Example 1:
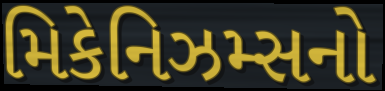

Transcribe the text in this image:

મિકેનિઝમ્સનો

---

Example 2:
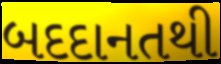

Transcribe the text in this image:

બદદાનતથી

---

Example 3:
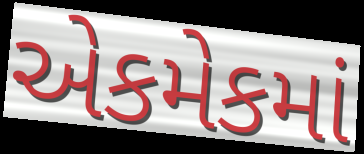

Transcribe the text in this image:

એકમેકમાં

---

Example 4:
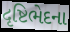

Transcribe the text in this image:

દૃષ્ટિભેદના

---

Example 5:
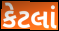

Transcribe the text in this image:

કેટલાં